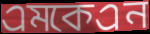
এমকেএন